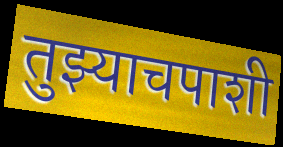
तुझ्याचपाशी